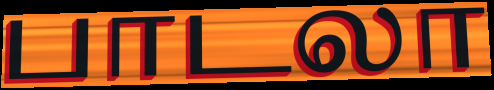
பாடலா